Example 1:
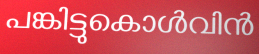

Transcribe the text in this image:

പങ്കിട്ടുകൊൾവിൻ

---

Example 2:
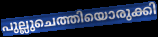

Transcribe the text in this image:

പുല്ലുചെത്തിയൊരുക്കി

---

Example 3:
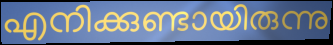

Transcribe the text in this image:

എനിക്കുണ്ടായിരുന്നു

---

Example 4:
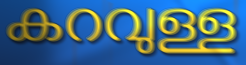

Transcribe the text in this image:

കറവുള്ള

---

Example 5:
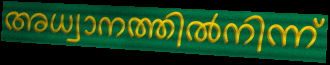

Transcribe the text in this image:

അധ്വാനത്തിൽനിന്ന്